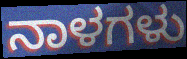
ನಾಳಗಳು